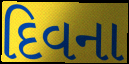
દિવના